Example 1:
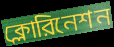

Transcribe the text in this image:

ক্লোরিনেশন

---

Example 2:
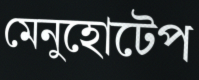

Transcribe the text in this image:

মেনুহোটেপ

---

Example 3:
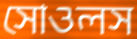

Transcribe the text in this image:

সোওলস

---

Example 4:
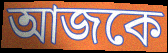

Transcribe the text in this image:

আজকে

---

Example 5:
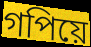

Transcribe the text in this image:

গপিয়ে